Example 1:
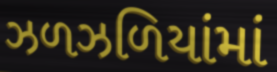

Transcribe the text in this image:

ઝળઝળિયાંમાં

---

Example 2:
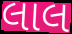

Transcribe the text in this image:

લાલ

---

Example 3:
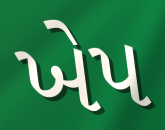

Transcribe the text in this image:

ખેપ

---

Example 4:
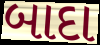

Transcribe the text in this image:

બાદા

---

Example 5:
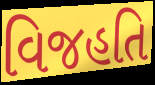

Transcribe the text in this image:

વિજહતિ